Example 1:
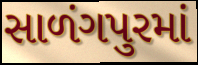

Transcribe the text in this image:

સાળંગપુરમાં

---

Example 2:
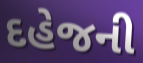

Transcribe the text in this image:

દહેજની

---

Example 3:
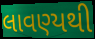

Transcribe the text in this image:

લાવણ્યથી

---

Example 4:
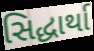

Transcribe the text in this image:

સિદ્ધાર્થા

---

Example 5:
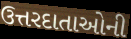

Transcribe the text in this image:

ઉત્તરદાતાઓની